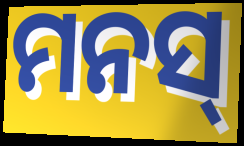
ମନସ୍